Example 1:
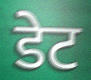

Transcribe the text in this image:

डेट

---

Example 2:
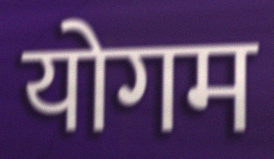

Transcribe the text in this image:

योगम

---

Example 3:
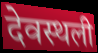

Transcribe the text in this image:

देवस्थली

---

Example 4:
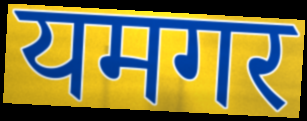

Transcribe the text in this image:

यमगर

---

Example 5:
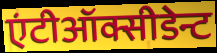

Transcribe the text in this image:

एंटीऑक्सीडेन्ट